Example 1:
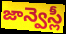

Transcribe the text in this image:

జాన్వెస్లీ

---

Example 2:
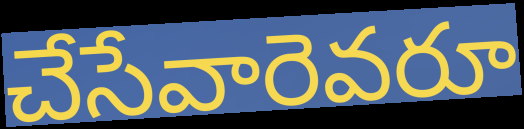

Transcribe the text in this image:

చేసేవారెవరూ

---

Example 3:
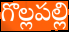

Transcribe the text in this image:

గొల్లపల్లి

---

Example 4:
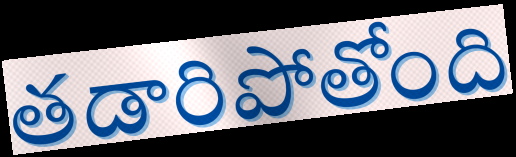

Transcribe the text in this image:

తడారిపోతోంది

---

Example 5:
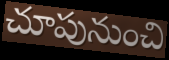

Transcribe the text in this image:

చూపునుంచి